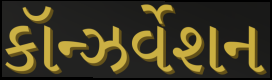
કૉન્ઝર્વેશન